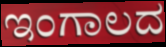
ಇಂಗಾಲದ